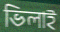
ভিলাই